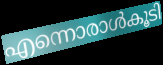
എന്നൊരാൾകൂടി